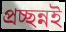
প্রচ্ছন্নই